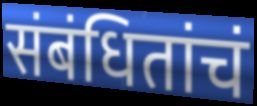
संबंधितांचं